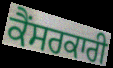
ਕੈਂਸਰਕਾਰੀ